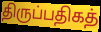
திருப்பதிகத்